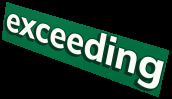
exceeding